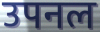
उपनल